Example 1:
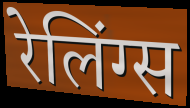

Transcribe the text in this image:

रेलिंग्स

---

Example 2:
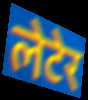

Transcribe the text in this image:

लेटेर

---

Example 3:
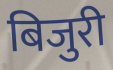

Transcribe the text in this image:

बिजुरी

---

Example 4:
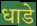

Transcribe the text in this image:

धाडे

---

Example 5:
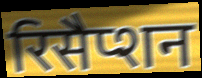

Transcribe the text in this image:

रिसैप्शन